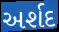
અર્શદ